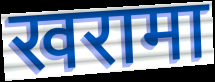
खरामा